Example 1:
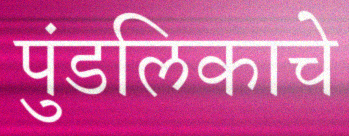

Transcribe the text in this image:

पुंडलिकाचे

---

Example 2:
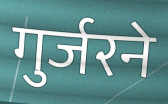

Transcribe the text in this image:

गुर्जरने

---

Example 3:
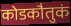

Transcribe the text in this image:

कोडकौतुकं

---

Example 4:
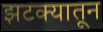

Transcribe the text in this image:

झटक्यातून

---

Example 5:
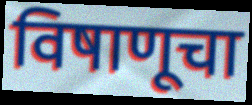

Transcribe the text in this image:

विषाणूचा